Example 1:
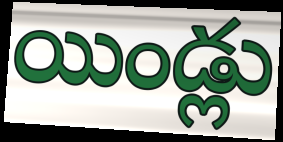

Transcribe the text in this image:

యిండ్లు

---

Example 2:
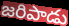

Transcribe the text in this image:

జరిపాడు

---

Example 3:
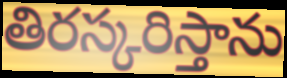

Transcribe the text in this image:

తిరస్కరిస్తాను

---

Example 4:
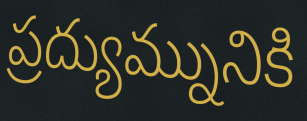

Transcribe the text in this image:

ప్రద్యుమ్నునికి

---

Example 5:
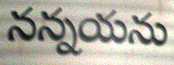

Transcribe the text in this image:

నన్నయను